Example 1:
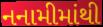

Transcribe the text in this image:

નનામીમાંથી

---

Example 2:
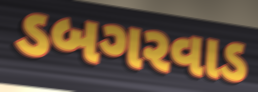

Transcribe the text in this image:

ડબગરવાડ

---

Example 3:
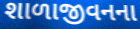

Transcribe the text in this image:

શાળાજીવનના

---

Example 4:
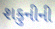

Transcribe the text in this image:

શકુનીની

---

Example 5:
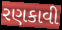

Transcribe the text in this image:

રણકાવી